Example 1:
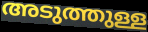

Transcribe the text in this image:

അടുത്തുള്ള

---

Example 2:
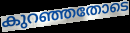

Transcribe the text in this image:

കുറഞ്ഞതോടെ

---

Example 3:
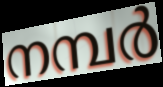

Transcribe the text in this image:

നമ്പർ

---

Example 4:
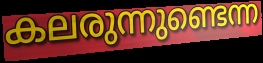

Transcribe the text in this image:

കലരുന്നുണ്ടെന്ന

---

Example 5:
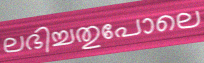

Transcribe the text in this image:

ലഭിച്ചതുപോലെ